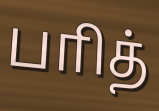
பரித்